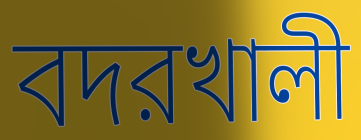
বদরখালী